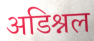
अडिश्नल